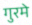
गुरमे